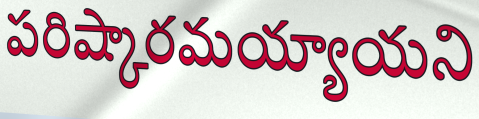
పరిష్కారమయ్యాయని